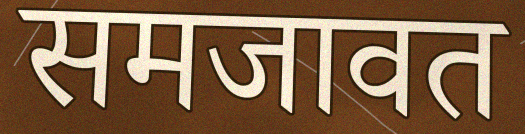
समजावत